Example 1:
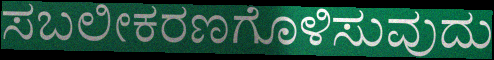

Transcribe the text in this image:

ಸಬಲೀಕರಣಗೊಳಿಸುವುದು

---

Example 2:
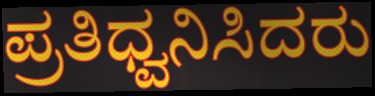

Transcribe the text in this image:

ಪ್ರತಿಧ್ವನಿಸಿದರು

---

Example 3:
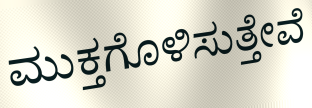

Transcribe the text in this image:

ಮುಕ್ತಗೊಳಿಸುತ್ತೇವೆ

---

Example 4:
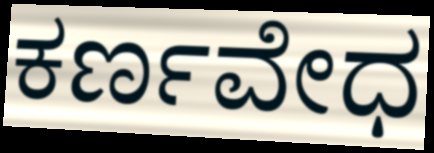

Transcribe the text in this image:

ಕರ್ಣವೇಧ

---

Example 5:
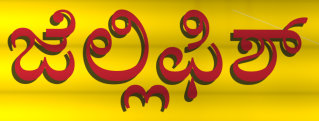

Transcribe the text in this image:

ಜೆಲ್ಲಿಫಿಶ್